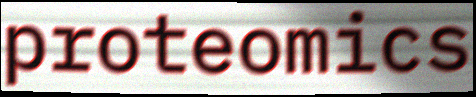
proteomics